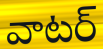
వాటర్